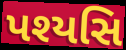
પશ્યસિ